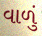
વાળું